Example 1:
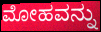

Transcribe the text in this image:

ಮೋಹವನ್ನು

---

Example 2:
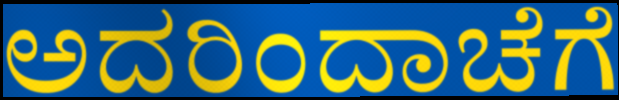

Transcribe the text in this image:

ಅದರಿಂದಾಚೆಗೆ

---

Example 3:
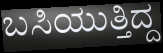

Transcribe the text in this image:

ಬಸಿಯುತ್ತಿದ್ದ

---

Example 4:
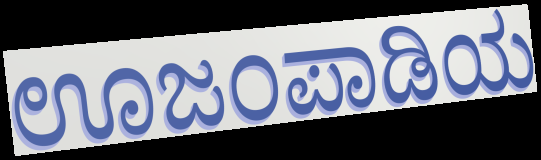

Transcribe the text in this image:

ಊಜಂಪಾಡಿಯ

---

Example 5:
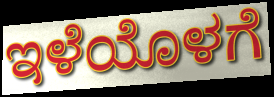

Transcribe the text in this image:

ಇಳೆಯೊಳಗೆ